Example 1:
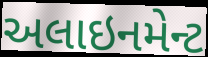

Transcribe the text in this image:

અલાઇનમેન્ટ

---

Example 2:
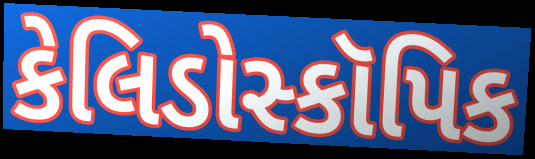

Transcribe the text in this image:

કેલિડોસ્કૉપિક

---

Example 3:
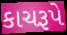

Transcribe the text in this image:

કાચરૂપે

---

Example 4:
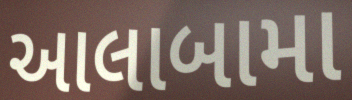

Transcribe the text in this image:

આલાબામા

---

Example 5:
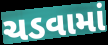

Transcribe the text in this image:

ચડવામાં